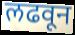
लढवून